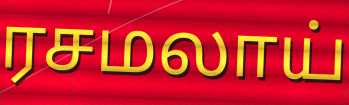
ரசமலாய்